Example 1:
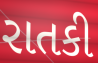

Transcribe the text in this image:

રાતકી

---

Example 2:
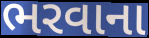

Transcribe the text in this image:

ભરવાના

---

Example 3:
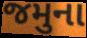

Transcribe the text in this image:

જમુના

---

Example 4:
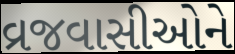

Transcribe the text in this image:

વ્રજવાસીઓને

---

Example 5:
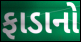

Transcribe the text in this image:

ફાડાનો